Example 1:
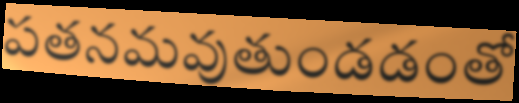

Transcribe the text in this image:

పతనమవుతుండడంతో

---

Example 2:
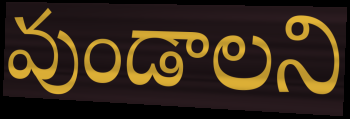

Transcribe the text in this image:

వుండాలని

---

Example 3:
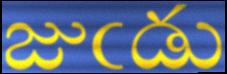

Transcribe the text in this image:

జుఁడు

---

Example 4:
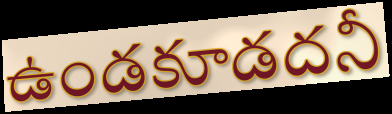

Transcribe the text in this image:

ఉండకూడదనీ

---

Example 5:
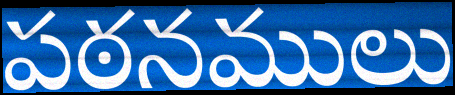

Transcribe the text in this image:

పఠనములు